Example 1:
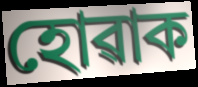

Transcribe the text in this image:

হোৱাক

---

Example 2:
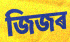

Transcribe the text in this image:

জিজৰ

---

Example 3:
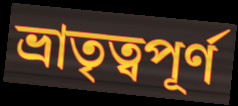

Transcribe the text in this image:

ভ্ৰাতৃত্বপূৰ্ণ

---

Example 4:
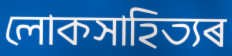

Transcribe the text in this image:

লোকসাহিত্যৰ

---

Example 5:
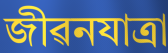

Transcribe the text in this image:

জীৱনযাত্ৰা